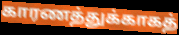
காரணத்துக்காகத்